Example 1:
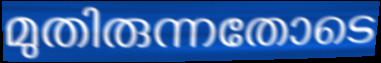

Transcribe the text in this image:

മുതിരുന്നതോടെ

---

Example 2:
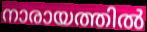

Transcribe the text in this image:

നാരായത്തിൽ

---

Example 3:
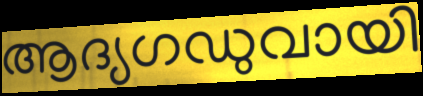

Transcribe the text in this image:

ആദ്യഗഡുവായി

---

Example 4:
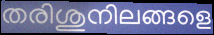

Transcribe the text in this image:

തരിശുനിലങ്ങളെ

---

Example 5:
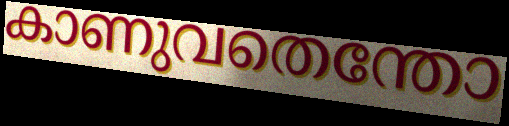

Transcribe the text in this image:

കാണുവതെന്തോ